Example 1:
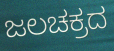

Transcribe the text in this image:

ಜಲಚಕ್ರದ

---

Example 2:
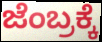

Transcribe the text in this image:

ಜೆಂಬ್ರಕ್ಕೆ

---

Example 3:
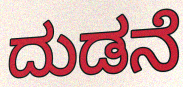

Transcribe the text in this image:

ದುಡನೆ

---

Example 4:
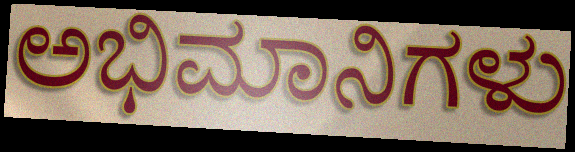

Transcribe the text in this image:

ಅಭಿಮಾನಿಗಳು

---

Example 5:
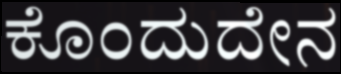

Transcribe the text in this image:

ಕೊಂದುದೇನ